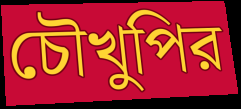
চৌখুপির